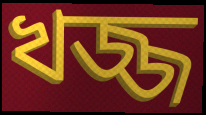
খজ্জ